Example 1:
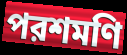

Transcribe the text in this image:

পরশমণি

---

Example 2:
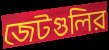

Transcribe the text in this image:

জেটগুলির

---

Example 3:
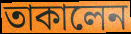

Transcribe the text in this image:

তাকালেন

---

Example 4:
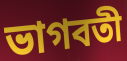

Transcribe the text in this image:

ভাগবতী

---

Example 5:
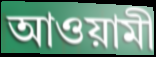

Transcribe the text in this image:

আওয়ামী